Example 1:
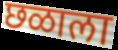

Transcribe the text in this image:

छळाला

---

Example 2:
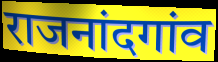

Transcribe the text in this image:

राजनांदगांव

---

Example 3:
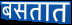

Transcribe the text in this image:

बसतात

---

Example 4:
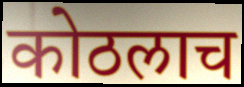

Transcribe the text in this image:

कोठलाच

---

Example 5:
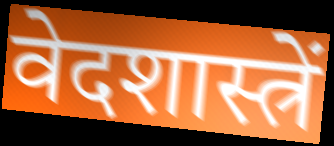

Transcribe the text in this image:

वेदशास्त्रें